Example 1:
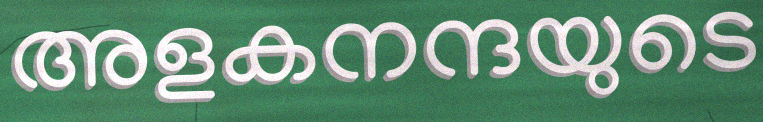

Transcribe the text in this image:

അളകനന്ദയുടെ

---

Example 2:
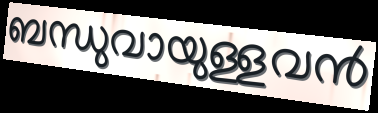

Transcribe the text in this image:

ബന്ധുവായുള്ളവൻ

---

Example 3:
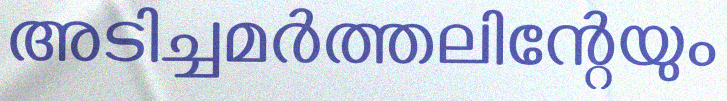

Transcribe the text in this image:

അടിച്ചമർത്തലിന്റേയും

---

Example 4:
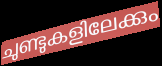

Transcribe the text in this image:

ചുണ്ടുകളിലേക്കും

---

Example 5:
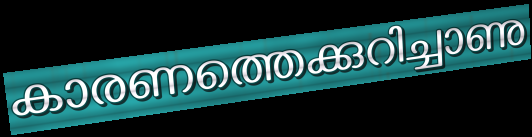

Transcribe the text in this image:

കാരണത്തെക്കുറിച്ചാണു